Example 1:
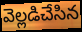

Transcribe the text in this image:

వెల్లడిచేసిన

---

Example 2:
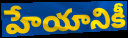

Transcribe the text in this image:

హేయానికీ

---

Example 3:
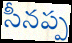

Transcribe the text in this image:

సీనప్ప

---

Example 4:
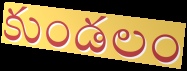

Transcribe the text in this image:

కుండలం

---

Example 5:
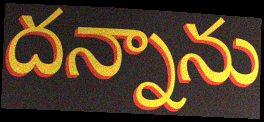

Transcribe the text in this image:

దన్నాను